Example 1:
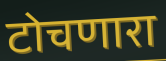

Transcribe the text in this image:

टोचणारा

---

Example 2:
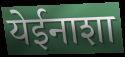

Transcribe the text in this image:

येईनाशा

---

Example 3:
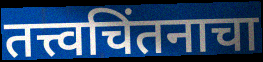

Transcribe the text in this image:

तत्त्वचिंतनाचा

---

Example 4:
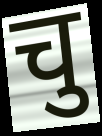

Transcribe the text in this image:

चु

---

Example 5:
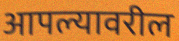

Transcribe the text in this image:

आपल्यावरील